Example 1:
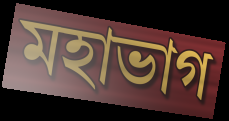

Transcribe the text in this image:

মহাভাগ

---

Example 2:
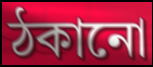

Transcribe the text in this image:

ঠকানো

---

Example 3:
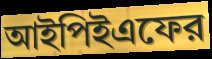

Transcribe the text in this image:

আইপিইএফের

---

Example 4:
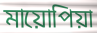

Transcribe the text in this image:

মায়োপিয়া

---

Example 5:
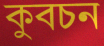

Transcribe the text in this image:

কুবচন